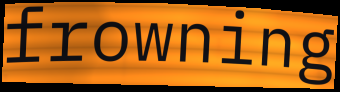
frowning